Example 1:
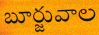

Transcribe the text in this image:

బూర్జువాల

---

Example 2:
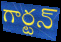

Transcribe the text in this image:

గార్టన్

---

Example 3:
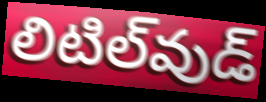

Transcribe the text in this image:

లిటిల్‌వుడ్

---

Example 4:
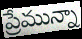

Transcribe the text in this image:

ప్రేమున్నా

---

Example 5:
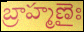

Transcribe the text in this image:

బ్రాహ్మణైః